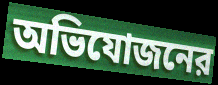
অভিযোজনের